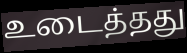
உடைத்தது